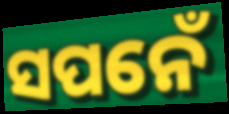
ସପନେଁ